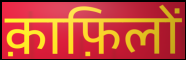
क़ाफ़िलों